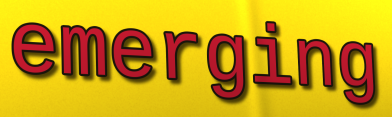
emerging